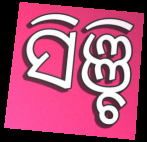
ସିଞ୍ଚି